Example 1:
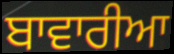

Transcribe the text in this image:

ਬਾਵਾਰੀਆ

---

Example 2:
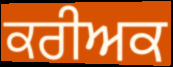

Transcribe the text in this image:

ਕਰੀਅਕ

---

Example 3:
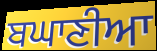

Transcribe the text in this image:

ਬਘਾਣੀਆ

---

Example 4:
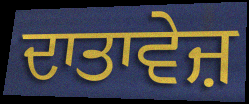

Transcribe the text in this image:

ਦਾਤਾਵੇਜ਼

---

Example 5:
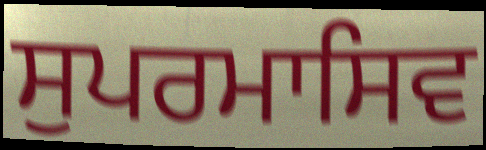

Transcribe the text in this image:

ਸੁਪਰਮਾਸਿਵ